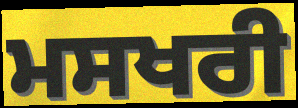
ਮਸਖਰੀ